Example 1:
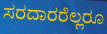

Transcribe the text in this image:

ಸರದಾರರೆಲ್ಲರೂ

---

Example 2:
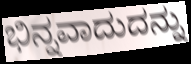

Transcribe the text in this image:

ಭಿನ್ನವಾದುದನ್ನು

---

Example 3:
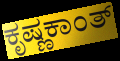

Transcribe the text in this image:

ಕೃಷ್ಣಕಾಂತ್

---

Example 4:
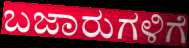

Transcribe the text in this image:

ಬಜಾರುಗಳಿಗೆ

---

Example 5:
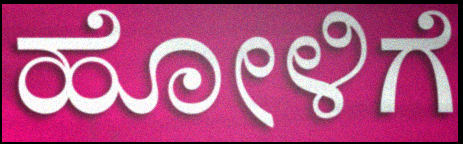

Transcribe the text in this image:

ಹೋಳಿಗೆ